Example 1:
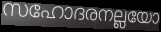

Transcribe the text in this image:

സഹോദരനല്ലയോ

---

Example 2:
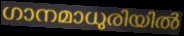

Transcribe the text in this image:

ഗാനമാധുരിയിൽ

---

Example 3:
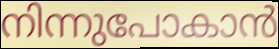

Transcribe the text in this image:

നിന്നുപോകാൻ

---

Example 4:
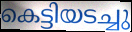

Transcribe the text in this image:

കെട്ടിയടച്ചു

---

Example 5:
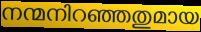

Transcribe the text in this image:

നന്മനിറഞ്ഞതുമായ